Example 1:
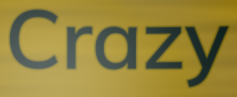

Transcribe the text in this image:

Crazy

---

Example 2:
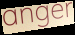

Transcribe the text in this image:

anger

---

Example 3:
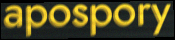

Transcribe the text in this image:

apospory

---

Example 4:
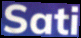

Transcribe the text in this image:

Sati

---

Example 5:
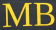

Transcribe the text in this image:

MB